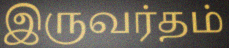
இருவர்தம்